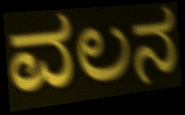
ವಲನ